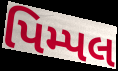
પિમ્પલ